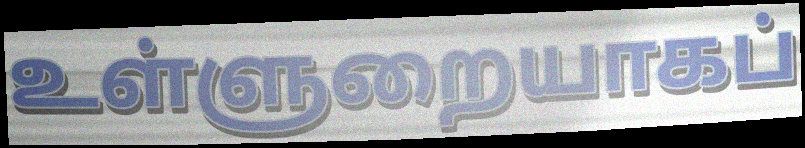
உள்ளுறையாகப்